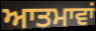
ਆਤਮਾਵਾਂ